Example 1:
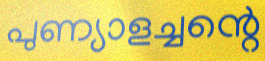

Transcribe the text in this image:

പുണ്യാളച്ചന്റെ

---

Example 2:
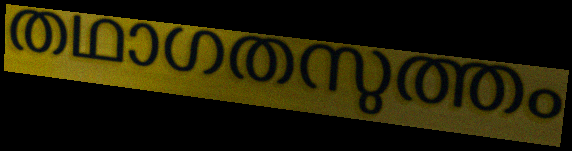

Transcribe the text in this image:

തഥാഗതസുത്തം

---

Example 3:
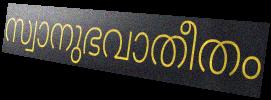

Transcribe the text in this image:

സ്വാനുഭവാതീതം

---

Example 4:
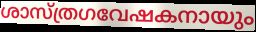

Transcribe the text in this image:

ശാസ്ത്രഗവേഷകനായും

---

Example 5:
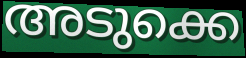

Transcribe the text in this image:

അടുക്കെ